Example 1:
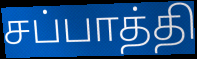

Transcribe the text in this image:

சப்பாத்தி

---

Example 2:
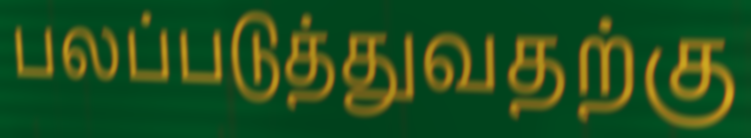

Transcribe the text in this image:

பலப்படுத்துவதற்கு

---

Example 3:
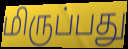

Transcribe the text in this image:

மிருப்பது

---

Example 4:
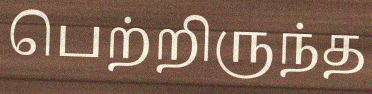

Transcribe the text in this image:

பெற்றிருந்த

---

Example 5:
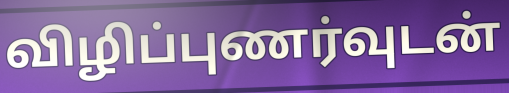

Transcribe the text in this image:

விழிப்புணர்வுடன்